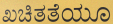
ಖಚಿತತೆಯೂ